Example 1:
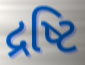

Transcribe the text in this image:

દ્રષ્ટિ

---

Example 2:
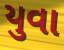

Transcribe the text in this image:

યુવા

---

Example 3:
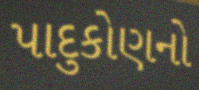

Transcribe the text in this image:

પાદુકોણનો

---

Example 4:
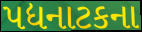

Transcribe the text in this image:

પદ્યનાટકના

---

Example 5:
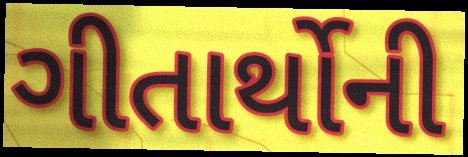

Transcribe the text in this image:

ગીતાર્થોની